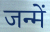
जन्में